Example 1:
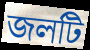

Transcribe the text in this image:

জলটি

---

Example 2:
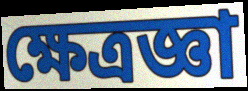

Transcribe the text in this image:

ক্ষেত্রজ্ঞা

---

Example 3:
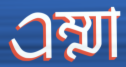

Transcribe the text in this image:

এম্মা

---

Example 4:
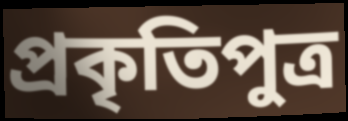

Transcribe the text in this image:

প্রকৃতিপুত্র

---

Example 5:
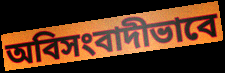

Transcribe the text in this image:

অবিসংবাদীভাবে